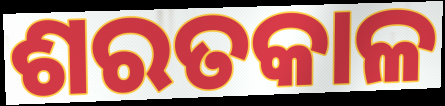
ଶରତକାଳ